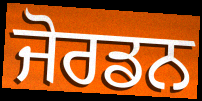
ਜੋਰਡਨ